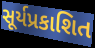
સૂર્યપ્રકાશિત